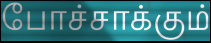
போச்சாக்கும்